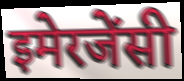
इमेरजेंसी